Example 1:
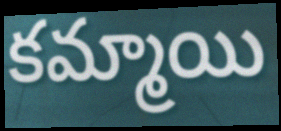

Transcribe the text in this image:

కమ్మాయి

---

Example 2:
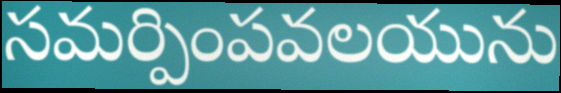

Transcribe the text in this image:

సమర్పింపవలయును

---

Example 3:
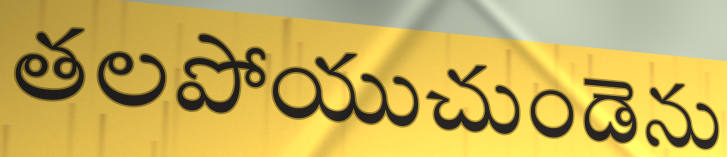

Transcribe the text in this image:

తలపోయుచుండెను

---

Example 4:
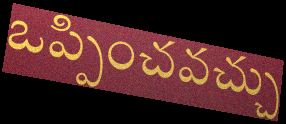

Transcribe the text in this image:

ఒప్పించవచ్చు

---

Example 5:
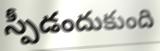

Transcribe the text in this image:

స్పీడందుకుంది